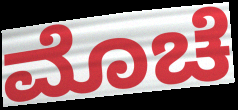
ಮೊಚೆ